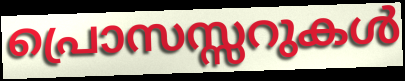
പ്രൊസസ്സറുകൾ